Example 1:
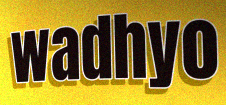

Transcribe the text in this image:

wadhyo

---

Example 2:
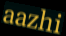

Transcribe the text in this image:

aazhi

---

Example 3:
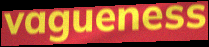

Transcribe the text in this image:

vagueness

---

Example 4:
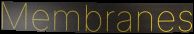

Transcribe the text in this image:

Membranes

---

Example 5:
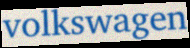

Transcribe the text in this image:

volkswagen